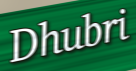
Dhubri